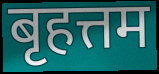
बृहत्तम